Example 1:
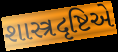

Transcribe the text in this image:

શાસ્ત્રદૃષ્ટિએ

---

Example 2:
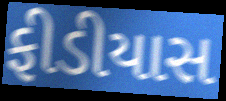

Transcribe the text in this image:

ફીડીયાસ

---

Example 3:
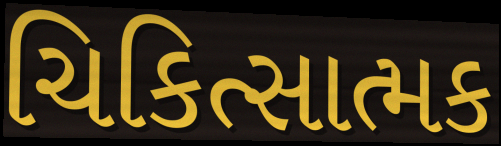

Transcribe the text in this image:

ચિકિત્સાત્મક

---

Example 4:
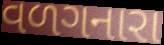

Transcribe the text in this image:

વળગનારા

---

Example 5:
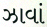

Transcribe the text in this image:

ઝાવાં